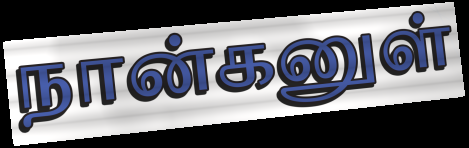
நான்கனுள்